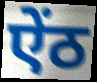
ऐंठ